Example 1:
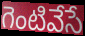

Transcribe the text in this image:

గెంటివేసే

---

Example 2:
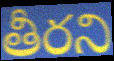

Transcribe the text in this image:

తీరని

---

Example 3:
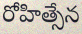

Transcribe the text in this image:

రోహిత్సేన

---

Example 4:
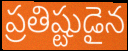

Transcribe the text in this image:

ప్రతిష్టుడైన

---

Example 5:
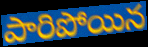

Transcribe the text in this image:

పారిపోయిన